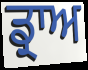
ਡ੍ਰਾਅ